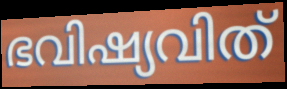
ഭവിഷ്യവിത്